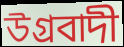
উগ্ৰবাদী